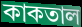
কাকতাল